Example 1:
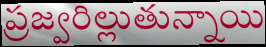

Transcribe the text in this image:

ప్రజ్వరిల్లుతున్నాయి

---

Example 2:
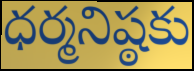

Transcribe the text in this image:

ధర్మనిష్ఠకు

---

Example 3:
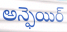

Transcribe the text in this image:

అన్ఫెయిర్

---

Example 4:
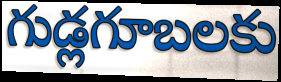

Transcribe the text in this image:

గుడ్లగూబలకు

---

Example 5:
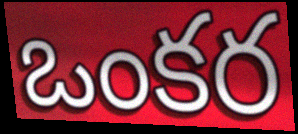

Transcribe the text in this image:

ఒంకర